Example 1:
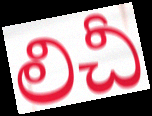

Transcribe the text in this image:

లిచీ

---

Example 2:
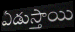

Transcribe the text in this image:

ఏడుస్తాయి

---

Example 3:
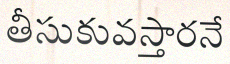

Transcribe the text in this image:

తీసుకువస్తారనే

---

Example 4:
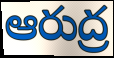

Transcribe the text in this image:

ఆరుద్ర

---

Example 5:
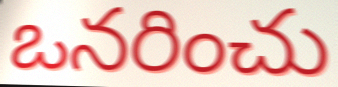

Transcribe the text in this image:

ఒనరించు